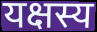
यक्षस्य